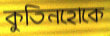
কুতিনহোকে